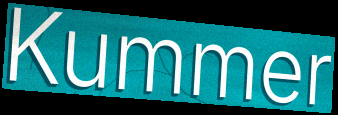
Kummer